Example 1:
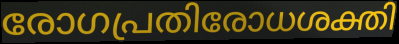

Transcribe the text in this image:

രോഗപ്രതിരോധശക്തി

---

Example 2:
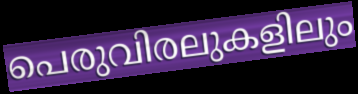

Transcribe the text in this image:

പെരുവിരലുകളിലും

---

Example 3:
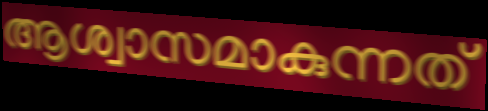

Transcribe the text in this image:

ആശ്വാസമാകുന്നത്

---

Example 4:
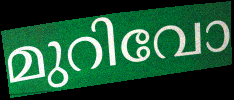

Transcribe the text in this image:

മുറിവോ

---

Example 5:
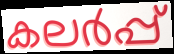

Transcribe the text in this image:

കലർപ്പ്